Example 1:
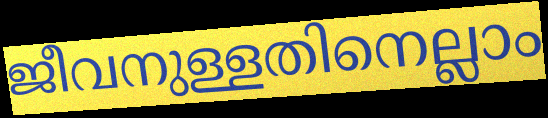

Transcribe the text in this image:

ജീവനുള്ളതിനെല്ലാം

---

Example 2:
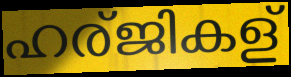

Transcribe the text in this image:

ഹര്ജികള്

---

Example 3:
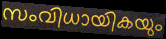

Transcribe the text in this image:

സംവിധായികയും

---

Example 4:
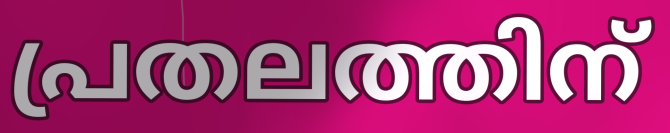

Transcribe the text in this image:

പ്രതലത്തിന്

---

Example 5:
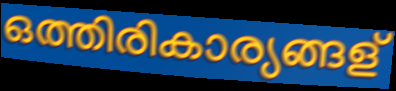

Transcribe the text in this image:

ഒത്തിരികാര്യങ്ങള്